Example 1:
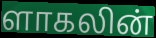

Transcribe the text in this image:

ளாகலின்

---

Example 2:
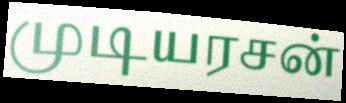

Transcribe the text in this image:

முடியரசன்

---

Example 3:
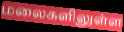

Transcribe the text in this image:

மலைகளிலுள்ள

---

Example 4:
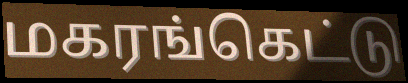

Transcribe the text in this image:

மகரங்கெட்டு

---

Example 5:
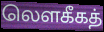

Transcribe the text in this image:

லௌகீகத்